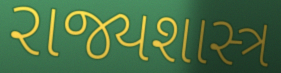
રાજ્યશાસ્ત્ર